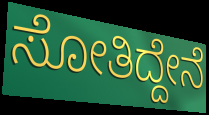
ಸೋತಿದ್ದೇನೆ